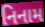
નિનામ